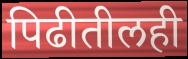
पिढीतीलही